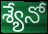
శ్యేనో